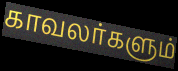
காவலர்களும்